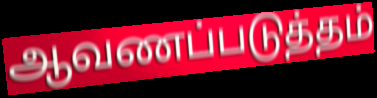
ஆவணப்படுத்தம்